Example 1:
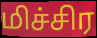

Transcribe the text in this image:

மிச்சிர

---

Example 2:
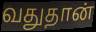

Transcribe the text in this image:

வதுதான்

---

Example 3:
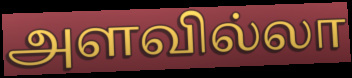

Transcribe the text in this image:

அளவில்லா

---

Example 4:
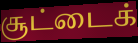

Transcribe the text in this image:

சூட்டைக்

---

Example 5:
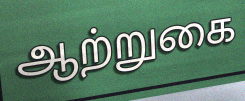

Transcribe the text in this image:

ஆற்றுகை